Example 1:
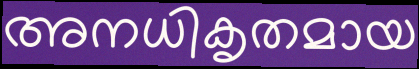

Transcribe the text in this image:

അനധികൃതമായ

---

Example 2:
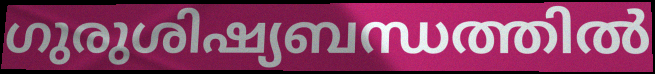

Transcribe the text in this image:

ഗുരുശിഷ്യബന്ധത്തിൽ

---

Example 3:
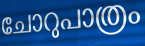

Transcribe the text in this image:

ചോറുപാത്രം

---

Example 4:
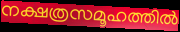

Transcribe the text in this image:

നക്ഷത്രസമൂഹത്തിൽ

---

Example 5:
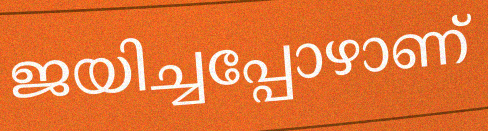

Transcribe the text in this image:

ജയിച്ചപ്പോഴാണ്